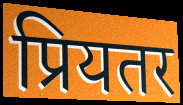
प्रियतर